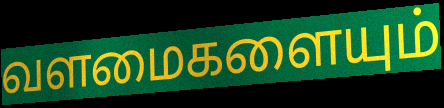
வளமைகளையும்